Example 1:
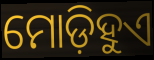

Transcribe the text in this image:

ମୋଡ଼ିହୁଏ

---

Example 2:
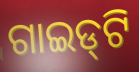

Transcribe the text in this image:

ଗାଇଡ୍‌ଟି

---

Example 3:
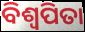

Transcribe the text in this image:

ବିଶ୍ୱପିତା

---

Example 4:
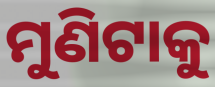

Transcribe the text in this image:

ମୁଣିଟାକୁ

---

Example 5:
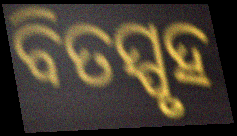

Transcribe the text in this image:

ବିତସ୍ପୃହ